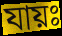
যায়ঃ